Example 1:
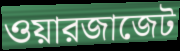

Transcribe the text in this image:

ওয়ারজাজেট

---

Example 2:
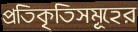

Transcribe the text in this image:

প্রতিকৃতিসমূহের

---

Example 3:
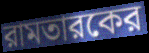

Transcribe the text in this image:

রামতারকের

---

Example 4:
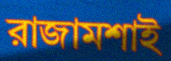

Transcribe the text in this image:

রাজামশাই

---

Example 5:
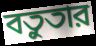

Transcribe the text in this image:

বতুতার